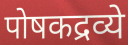
पोषकद्रव्ये